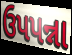
ઉપપન્ના